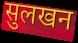
सुलखन